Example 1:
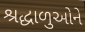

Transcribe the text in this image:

શ્રદ્ધાળુઓને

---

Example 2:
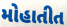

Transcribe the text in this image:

મોહાતીત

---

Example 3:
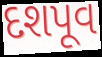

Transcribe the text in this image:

દશપૂવ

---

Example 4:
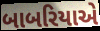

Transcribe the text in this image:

બાબરિયાએ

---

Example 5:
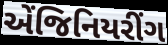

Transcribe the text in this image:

એંજિનિયરીંગ